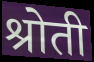
श्रोती